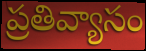
ప్రతివ్యాసం